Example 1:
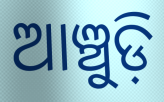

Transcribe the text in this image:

ଆଞ୍ଚୁଡ଼ି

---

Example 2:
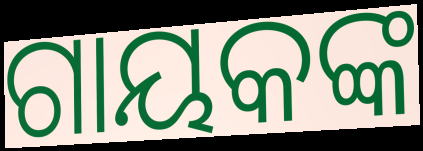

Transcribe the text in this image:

ଗାୟକଙ୍କ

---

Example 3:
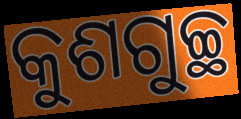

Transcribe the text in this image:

କୁଶଗୁଚ୍ଛ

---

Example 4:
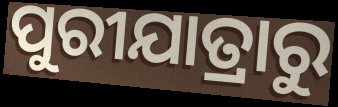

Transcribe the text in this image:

ପୁରୀଯାତ୍ରାରୁ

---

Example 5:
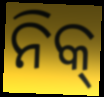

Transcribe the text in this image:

ନିକ୍